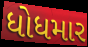
ધોધમાર